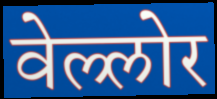
वेल्लोर